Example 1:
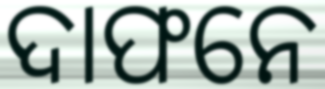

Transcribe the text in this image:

ଦାଫନେ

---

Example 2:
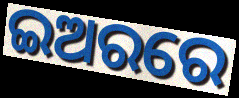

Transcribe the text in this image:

ଇଅରରେ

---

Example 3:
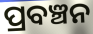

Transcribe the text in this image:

ପ୍ରବଞ୍ଚନ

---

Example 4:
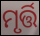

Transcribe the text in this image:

ମୃର୍ତ୍ତି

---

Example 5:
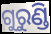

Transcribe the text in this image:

ଗୁରୁଣ୍ଡି